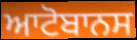
ਆਟੋਬਾਨਸ